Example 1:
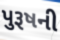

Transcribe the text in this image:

પુરૂષની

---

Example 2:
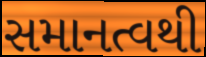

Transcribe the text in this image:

સમાનત્વથી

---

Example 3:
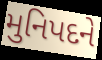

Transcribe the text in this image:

મુનિપદને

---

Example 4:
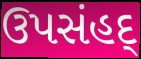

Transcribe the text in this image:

ઉપસંહદ્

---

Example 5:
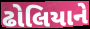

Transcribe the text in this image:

ઢોલિયાને